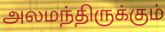
அலமந்திருக்கும்